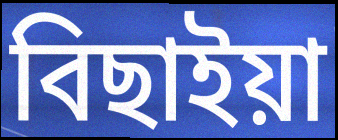
বিছাইয়া